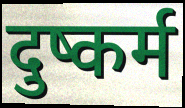
दुष्कर्म